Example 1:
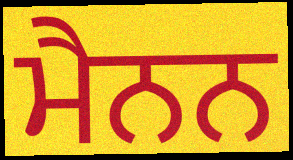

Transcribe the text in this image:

ਮੈਨਨ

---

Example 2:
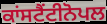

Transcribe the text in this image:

ਕਾਂਸਟੈਂਟੀਨੋਪਲ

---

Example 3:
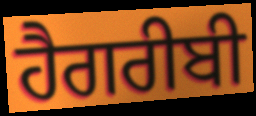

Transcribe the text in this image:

ਹੈਗਰੀਬੀ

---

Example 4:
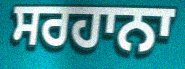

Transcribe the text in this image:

ਸਰਹਾਨਾ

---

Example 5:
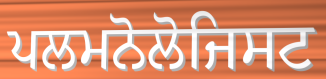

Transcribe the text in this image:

ਪਲਮਨੋਲੋਜਿਸਟ